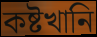
কষ্টখানি